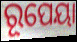
ରୂପେୟା